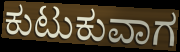
ಕುಟುಕುವಾಗ